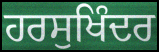
ਹਰਸੁਖਿੰਦਰ